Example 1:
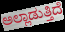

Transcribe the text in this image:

ಅಲ್ಲಾಡುತ್ತಿದೆ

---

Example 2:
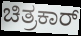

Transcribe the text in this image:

ಚಿತ್ರಕಾರ್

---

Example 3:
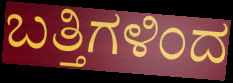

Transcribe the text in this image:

ಬತ್ತಿಗಳಿಂದ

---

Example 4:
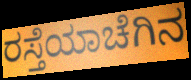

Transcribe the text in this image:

ರಸ್ತೆಯಾಚೆಗಿನ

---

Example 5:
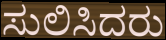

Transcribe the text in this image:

ಸುಲಿಸಿದರು